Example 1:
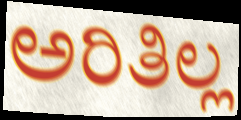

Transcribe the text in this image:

ಅರಿತಿಲ್ಲ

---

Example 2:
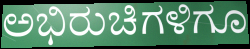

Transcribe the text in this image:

ಅಭಿರುಚಿಗಳಿಗೂ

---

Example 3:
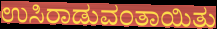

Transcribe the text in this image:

ಉಸಿರಾಡುವಂತಾಯಿತು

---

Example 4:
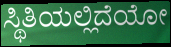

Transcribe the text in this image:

ಸ್ಥಿತಿಯಲ್ಲಿದೆಯೋ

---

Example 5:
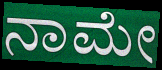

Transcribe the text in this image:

ನಾಮೇ